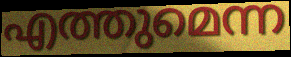
എത്തുമെന്ന